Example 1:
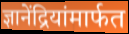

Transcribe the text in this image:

ज्ञानेंद्रियांमार्फत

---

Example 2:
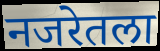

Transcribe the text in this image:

नजरेतला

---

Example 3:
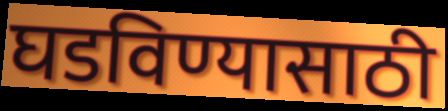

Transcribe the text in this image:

घडविण्यासाठी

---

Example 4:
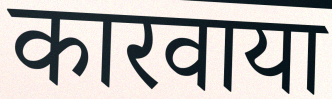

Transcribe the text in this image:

कारवाया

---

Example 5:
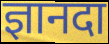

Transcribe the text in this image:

ज्ञानदा